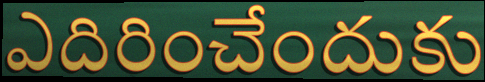
ఎదిరించేందుకు